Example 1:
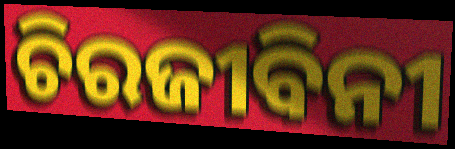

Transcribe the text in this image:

ଚିରଜୀବିନୀ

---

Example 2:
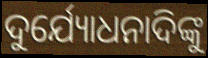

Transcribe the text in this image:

ଦୁର୍ଯ୍ୟୋଧନାଦିଙ୍କୁ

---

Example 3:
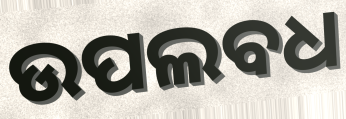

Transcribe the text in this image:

ଉପଲବଧ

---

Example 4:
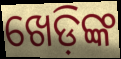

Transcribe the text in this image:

ଖେଡ଼ିଙ୍କ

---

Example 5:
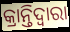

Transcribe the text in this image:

କ୍ରାନ୍ତିଦ୍ୱାରା